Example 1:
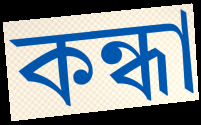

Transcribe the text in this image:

কন্ধা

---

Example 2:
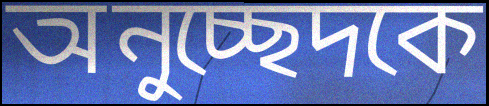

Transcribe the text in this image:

অনুচ্ছেদকে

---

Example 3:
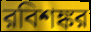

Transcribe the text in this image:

রবিশঙ্কর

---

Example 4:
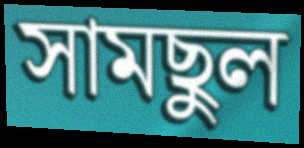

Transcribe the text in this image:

সামছুল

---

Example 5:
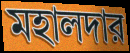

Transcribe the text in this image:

মহালদার